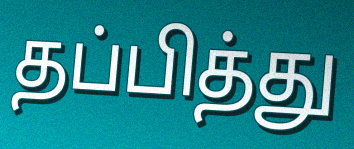
தப்பித்து